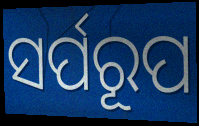
ସର୍ପରୂପ